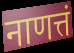
नाणत्तं